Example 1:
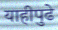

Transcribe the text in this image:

याहीपुढे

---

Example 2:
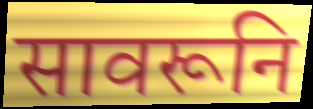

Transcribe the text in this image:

सावरूनि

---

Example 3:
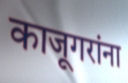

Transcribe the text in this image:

काजूगरांना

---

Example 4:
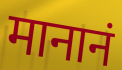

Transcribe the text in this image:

मानानं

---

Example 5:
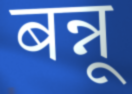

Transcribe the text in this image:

बन्नू